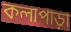
কলাপাড়া